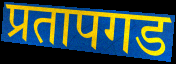
प्रतापगड